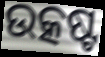
ଉତ୍କଷ୍ଟ